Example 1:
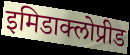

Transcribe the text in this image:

इमिडाक्लोप्रीड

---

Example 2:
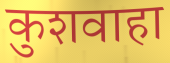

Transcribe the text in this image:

कुशवाहा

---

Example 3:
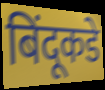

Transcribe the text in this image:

बिंदूकडे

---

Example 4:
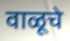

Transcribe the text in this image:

वाळूचे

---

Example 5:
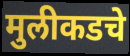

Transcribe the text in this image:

मुलीकडचे